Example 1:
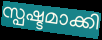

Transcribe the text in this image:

സ്പഷ്ടമാക്കി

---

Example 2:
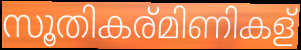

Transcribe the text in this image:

സൂതികര്മിണികള്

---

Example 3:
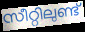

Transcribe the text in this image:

സീറ്റിലുണ്ട്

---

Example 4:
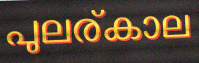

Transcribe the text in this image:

പുലര്കാല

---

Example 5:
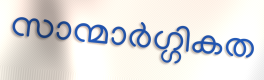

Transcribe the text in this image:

സാന്മാർഗ്ഗികത